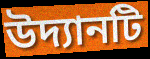
উদ্যানটি